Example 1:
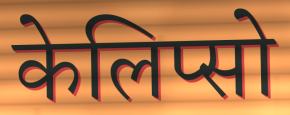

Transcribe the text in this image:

केलिप्सो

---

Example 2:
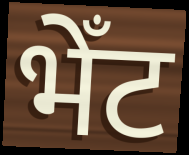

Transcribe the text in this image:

भेँट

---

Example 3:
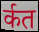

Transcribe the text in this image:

र्कत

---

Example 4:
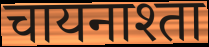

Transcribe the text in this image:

चायनाश्ता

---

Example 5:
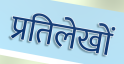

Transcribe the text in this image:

प्रतिलेखों